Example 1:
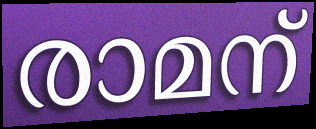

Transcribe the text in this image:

രാമന്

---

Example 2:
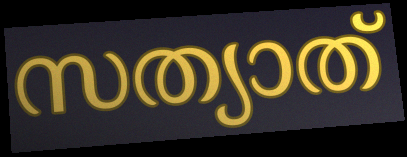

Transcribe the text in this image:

സത്യാത്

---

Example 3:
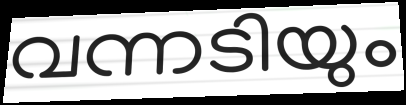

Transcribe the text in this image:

വന്നടിയും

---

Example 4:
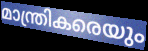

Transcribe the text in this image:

മാന്ത്രികരെയും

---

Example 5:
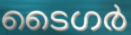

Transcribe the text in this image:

ടൈഗർ